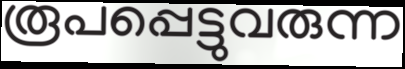
രൂപപ്പെട്ടുവരുന്ന